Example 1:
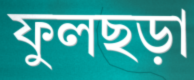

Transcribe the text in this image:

ফুলছড়া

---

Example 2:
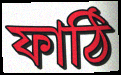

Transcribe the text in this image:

ফাঠি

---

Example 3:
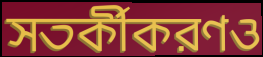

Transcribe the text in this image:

সতর্কীকরণও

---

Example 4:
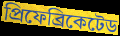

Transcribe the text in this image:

প্রিফেব্রিকেটেড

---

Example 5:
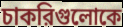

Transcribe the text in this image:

চাকরিগুলোকে